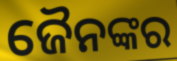
ଜୈନଙ୍କର